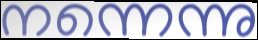
നന്നെന്നു